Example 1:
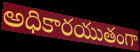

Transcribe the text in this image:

అధికారయుతంగా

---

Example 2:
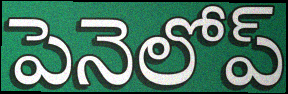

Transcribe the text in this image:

పెనెలోప్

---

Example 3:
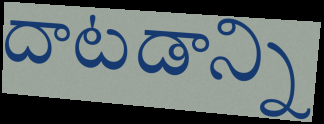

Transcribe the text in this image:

దాటడాన్ని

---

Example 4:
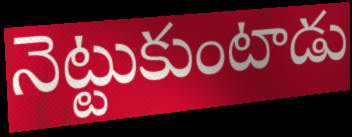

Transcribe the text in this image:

నెట్టుకుంటాడు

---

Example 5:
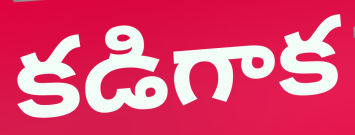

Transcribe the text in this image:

కడిగాక